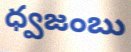
ధ్వజంబు